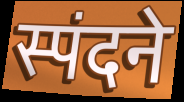
स्पंदने